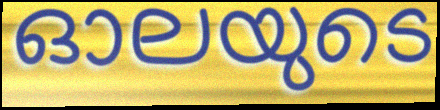
ഓലയുടെ